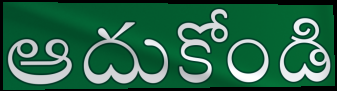
ఆదుకోండి